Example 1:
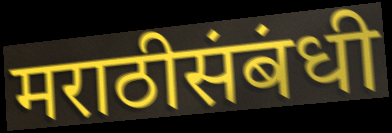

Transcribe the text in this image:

मराठीसंबंधी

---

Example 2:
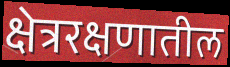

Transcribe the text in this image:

क्षेत्ररक्षणातील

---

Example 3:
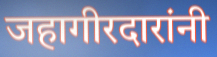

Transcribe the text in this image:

जहागीरदारांनी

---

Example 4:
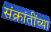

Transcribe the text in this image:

संक्रांतींच्या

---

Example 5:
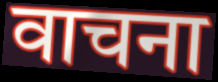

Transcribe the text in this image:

वाचना